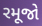
રમૂજો